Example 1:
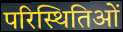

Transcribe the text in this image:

परिस्थितिओं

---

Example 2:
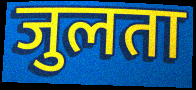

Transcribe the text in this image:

जुलता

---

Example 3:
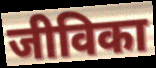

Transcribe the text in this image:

जीविका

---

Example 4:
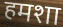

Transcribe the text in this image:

हमशा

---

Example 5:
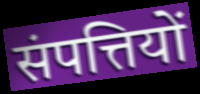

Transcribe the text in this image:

संपत्तियों